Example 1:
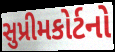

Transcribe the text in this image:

સુપ્રીમકોર્ટનો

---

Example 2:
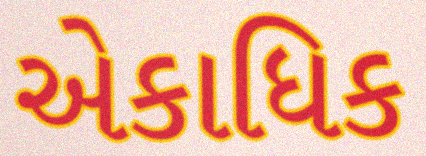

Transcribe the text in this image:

એકાધિક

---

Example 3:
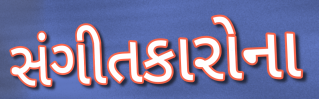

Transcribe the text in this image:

સંગીતકારોના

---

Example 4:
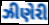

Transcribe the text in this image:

ઝીણેરી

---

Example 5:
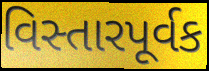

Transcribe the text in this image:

વિસ્તારપૂર્વક